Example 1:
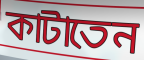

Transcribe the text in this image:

কাটাতেন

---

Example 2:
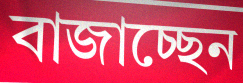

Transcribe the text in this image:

বাজাচ্ছেন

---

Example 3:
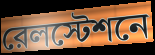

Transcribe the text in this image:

রেলস্টেশনে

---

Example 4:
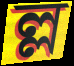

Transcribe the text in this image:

ল্ল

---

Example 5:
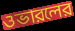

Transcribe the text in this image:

ওভারলের